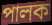
পালক